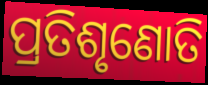
ପ୍ରତିଶୃଣୋତି